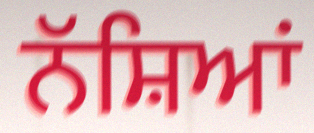
ਨੱਸ਼ਿਆਂ